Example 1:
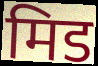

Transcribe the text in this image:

मिड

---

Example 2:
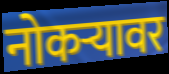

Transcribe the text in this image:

नोकऱ्यावर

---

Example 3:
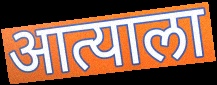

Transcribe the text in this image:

आत्याला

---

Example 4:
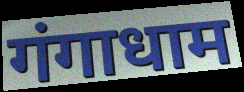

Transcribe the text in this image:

गंगाधाम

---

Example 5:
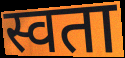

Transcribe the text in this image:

स्वता